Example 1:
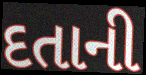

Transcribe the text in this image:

દતાની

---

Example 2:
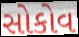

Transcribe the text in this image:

સોકોવ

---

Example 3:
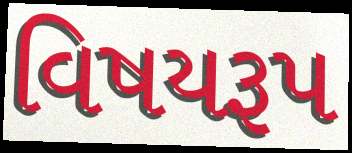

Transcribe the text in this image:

વિષયરૂપ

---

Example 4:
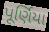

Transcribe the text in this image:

પૂર્ણિયા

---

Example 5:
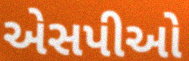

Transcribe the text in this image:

એસપીઓ